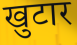
खुटार